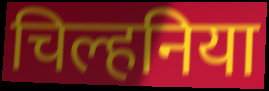
चिल्हनिया